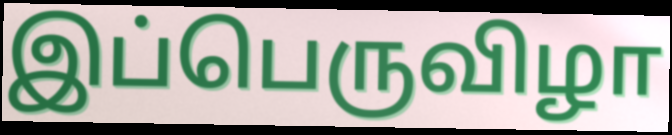
இப்பெருவிழா